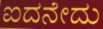
ಐದನೇದು